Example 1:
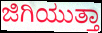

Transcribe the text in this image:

ಜಿಗಿಯುತ್ತಾ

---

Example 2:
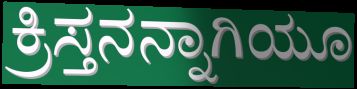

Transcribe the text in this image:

ಕ್ರಿಸ್ತನನ್ನಾಗಿಯೂ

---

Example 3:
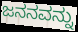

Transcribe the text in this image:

ಜನನವನ್ನು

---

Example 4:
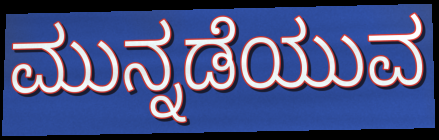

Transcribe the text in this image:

ಮುನ್ನಡೆಯುವ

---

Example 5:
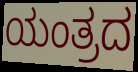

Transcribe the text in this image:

ಯಂತ್ರದ